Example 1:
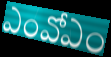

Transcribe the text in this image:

ఎంవోఎం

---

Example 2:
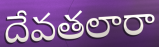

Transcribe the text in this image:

దేవతలారా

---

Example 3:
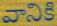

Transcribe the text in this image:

వానికి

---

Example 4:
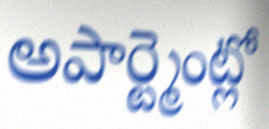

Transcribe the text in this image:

అపార్ట్మెంట్లో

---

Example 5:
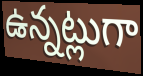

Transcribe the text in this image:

ఉన్నట్లుగా